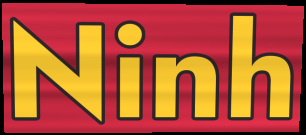
Ninh